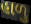
હાળુ